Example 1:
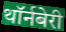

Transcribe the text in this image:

थॉर्नबेरी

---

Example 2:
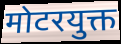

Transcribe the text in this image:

मोटरयुक्त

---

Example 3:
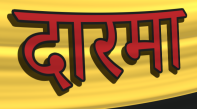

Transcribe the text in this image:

दारमा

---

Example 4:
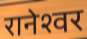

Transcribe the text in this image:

रानेश्वर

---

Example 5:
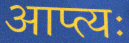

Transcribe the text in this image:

आप्त्यः